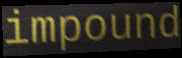
impound